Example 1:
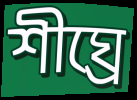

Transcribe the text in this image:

শীঘ্ৰে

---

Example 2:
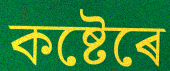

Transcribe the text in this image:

কষ্টেৰে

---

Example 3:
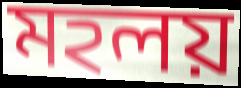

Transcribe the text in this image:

মহলয়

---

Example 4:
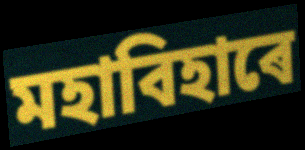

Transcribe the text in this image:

মহাবিহাৰে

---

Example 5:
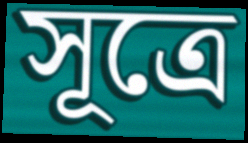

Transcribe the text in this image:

সূত্ৰে